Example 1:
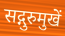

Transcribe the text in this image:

सद्गुरुमुखें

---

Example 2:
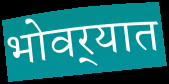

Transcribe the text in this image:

भोवर्यात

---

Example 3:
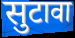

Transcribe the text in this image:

सुटावा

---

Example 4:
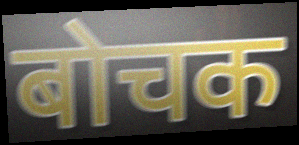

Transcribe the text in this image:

बोचक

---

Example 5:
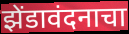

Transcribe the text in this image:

झेंडावंदनाचा